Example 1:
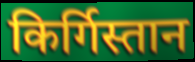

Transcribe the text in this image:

किर्गिस्तान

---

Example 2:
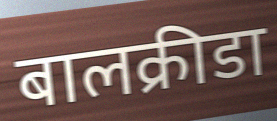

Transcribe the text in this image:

बालक्रीडा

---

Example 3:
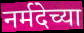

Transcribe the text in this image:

नर्मदेच्या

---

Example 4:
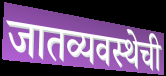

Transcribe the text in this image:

जातव्यवस्थेची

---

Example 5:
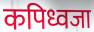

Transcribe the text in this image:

कपिध्वजा